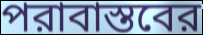
পরাবাস্তবের